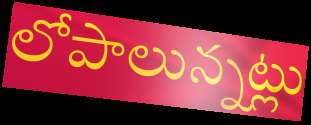
లోపాలున్నట్లు